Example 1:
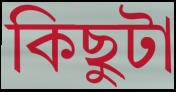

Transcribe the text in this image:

কিছুটা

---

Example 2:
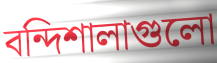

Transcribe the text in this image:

বন্দিশালাগুলো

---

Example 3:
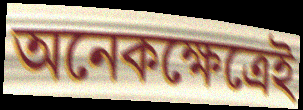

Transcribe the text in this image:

অনেকক্ষেত্রেই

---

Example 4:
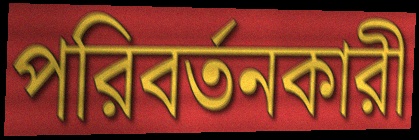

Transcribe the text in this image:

পরিবর্তনকারী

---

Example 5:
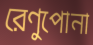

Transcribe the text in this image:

রেণুপোনা